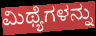
ಮಿಥ್ಯೆಗಳನ್ನು